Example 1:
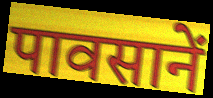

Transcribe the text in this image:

पावसानें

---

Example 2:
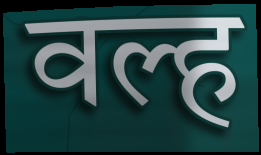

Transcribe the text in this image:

वल्ह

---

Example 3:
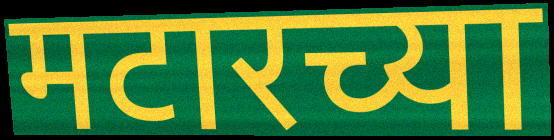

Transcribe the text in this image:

मटारच्या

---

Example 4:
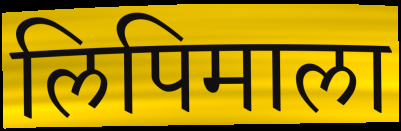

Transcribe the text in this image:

लिपिमाला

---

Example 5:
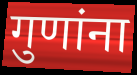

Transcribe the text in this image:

गुणांना